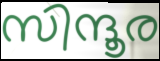
സിന്ദൂര